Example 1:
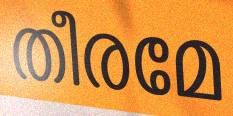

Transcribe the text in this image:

തീരമേ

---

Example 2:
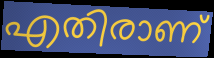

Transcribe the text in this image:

എതിരാണ്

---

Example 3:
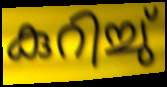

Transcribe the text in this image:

കുറിച്ചു്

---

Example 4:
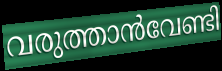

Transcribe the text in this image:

വരുത്താൻവേണ്ടി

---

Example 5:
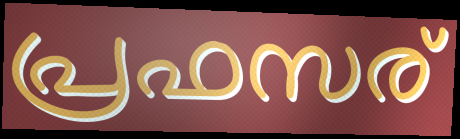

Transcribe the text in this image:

പ്രഫസര്